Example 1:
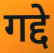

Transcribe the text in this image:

गद्दे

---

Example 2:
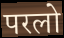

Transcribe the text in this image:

परलो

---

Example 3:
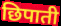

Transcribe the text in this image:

छिपाती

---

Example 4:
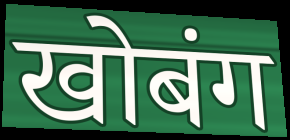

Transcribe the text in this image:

खोबंग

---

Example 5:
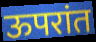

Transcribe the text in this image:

ऊपरांत